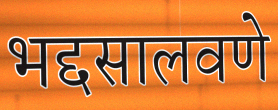
भद्दसालवणे